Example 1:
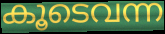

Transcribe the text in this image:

കൂടെവന്ന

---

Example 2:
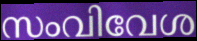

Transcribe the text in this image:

സംവിവേശ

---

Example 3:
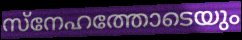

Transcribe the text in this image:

സ്നേഹത്തോടെയും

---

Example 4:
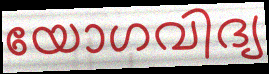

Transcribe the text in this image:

യോഗവിദ്യ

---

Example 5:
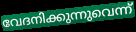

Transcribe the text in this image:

വേദനിക്കുന്നുവെന്ന്